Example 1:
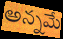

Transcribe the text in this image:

అన్నమే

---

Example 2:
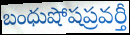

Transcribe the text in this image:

బంధుషోషప్రవర్తీ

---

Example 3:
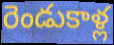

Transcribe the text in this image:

రెండుకాళ్ల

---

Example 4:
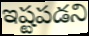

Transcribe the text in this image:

ఇష్టపడని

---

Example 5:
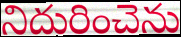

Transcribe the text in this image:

నిదురించెను